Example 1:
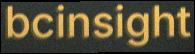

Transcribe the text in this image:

bcinsight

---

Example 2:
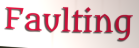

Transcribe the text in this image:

Faulting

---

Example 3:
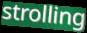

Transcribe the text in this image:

strolling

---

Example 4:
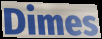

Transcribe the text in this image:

Dimes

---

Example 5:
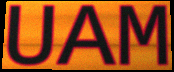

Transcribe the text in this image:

UAM